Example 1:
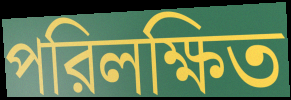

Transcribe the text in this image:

পরিলক্ষিত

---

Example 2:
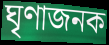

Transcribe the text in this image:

ঘৃণাজনক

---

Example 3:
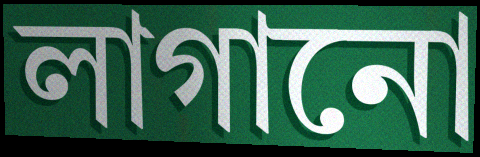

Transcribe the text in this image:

লাগানো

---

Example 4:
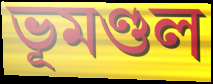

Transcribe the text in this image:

ভূমণ্ডল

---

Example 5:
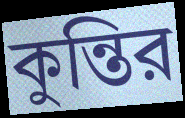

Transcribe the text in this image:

কুন্তির